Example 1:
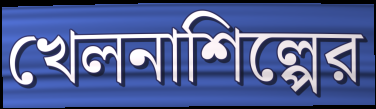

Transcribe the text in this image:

খেলনাশিল্পের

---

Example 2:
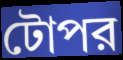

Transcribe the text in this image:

টোপর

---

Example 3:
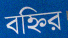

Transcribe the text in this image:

বহ্নির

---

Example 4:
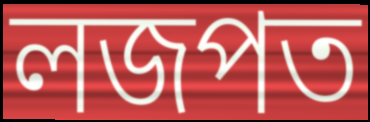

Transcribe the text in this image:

লজপত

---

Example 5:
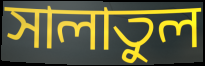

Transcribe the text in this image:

সালাতুল